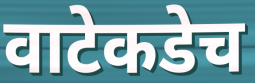
वाटेकडेच